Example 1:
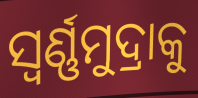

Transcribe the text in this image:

ସ୍ଵର୍ଣ୍ଣମୁଦ୍ରାକୁ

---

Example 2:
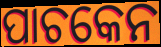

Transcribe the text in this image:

ପାଚକେନ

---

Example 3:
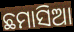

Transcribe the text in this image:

ଛମାସିଆ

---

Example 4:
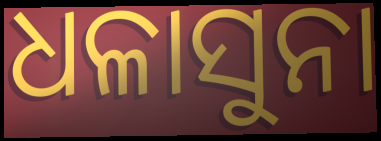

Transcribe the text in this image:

ଧଳାସୁନା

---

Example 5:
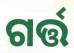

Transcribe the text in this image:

ଗର୍ତ୍ତ